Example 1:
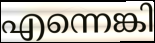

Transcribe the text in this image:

എന്നെങ്കി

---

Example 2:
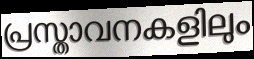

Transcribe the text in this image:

പ്രസ്താവനകളിലും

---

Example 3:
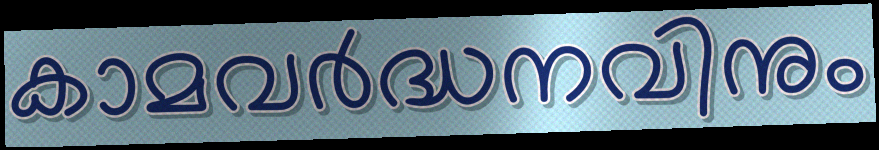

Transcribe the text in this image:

കാമവർദ്ധനവിനും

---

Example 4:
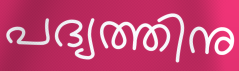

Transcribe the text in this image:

പദ്യത്തിനു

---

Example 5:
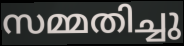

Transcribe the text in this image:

സമ്മതിച്ചു